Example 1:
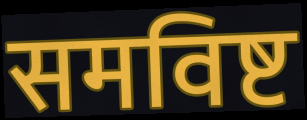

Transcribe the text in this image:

समविष्ट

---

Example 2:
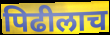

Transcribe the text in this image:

पिढीलाच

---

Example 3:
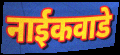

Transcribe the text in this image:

नाईकवाडे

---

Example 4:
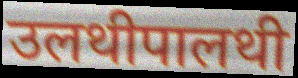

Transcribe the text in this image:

उलथीपालथी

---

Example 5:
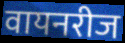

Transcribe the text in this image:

वायनरीज